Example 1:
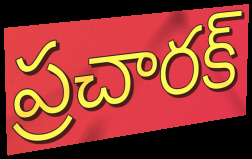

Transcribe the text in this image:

ప్రచారక్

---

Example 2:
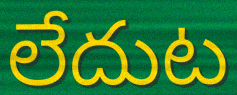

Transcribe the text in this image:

లేదుట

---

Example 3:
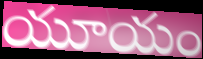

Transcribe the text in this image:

యూయం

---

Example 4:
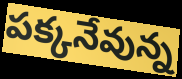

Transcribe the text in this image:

పక్కనేవున్న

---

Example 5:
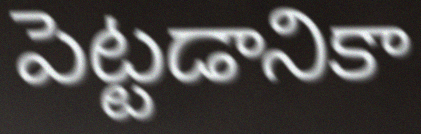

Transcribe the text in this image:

పెట్టడానికా